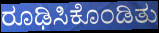
ರೂಢಿಸಿಕೊಂಡಿತು